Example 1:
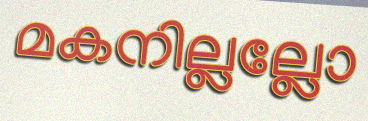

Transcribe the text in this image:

മകനില്ലല്ലോ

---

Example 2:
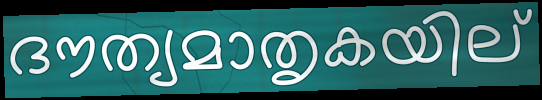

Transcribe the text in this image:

ദൗത്യമാതൃകയില്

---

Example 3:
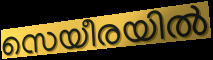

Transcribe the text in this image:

സെയീരയിൽ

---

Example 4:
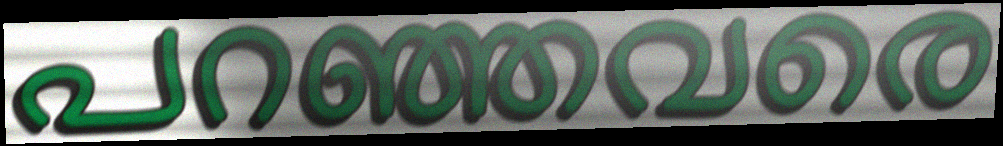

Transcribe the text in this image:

പറഞ്ഞവരെ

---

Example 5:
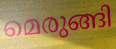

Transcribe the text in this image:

മെരുങ്ങി